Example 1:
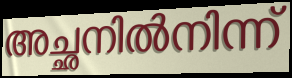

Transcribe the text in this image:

അച്ഛനിൽനിന്ന്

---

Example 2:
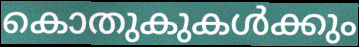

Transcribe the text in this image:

കൊതുകുകൾക്കും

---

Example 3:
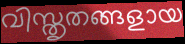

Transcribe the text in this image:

വിസ്തൃതങ്ങളായ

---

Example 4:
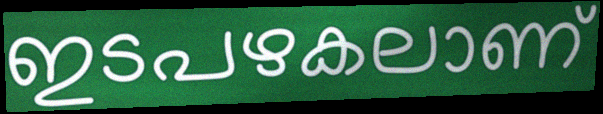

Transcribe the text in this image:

ഇടപഴകലാണ്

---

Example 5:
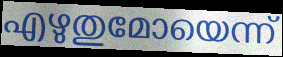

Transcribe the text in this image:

എഴുതുമോയെന്ന്